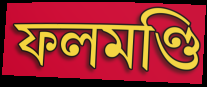
ফলমণ্ডি